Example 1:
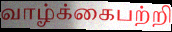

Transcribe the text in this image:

வாழ்க்கைபற்றி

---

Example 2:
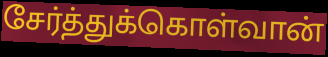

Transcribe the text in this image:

சேர்த்துக்கொள்வான்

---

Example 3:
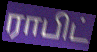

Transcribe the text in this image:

ராபிட்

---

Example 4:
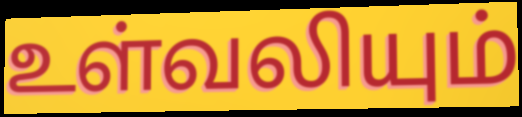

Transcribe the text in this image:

உள்வலியும்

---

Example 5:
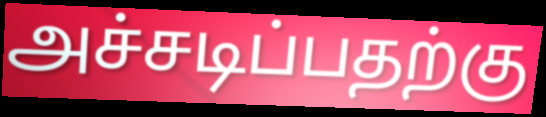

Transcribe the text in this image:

அச்சடிப்பதற்கு